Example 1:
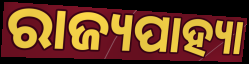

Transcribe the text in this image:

ରାଜ୍ୟପାହ୍ୟା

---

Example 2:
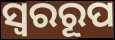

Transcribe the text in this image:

ସ୍ୱରରୂପ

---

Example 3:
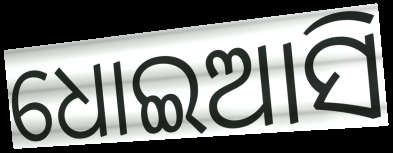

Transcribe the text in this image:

ଧୋଇଆସି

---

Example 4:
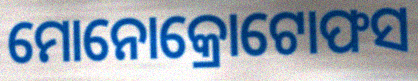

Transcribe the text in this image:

ମୋନୋକ୍ରୋଟୋଫସ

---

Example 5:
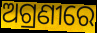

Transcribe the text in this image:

ଅଗ୍ରଣୀରେ